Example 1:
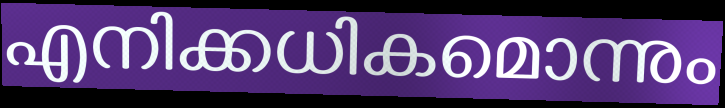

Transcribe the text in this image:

എനിക്കധികമൊന്നും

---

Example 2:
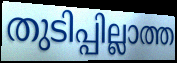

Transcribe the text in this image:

തുടിപ്പില്ലാത്ത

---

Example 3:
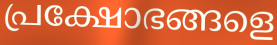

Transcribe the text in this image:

പ്രക്ഷോഭങ്ങളെ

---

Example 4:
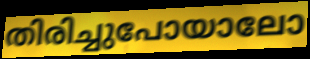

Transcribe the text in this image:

തിരിച്ചുപോയാലോ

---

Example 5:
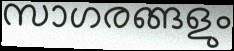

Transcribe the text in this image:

സാഗരങ്ങളും